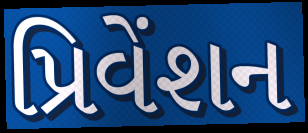
પ્રિવેંશન